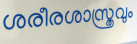
ശരീരശാസ്ത്രവും